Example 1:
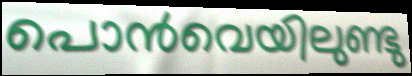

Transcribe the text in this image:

പൊൻവെയിലുണ്ടു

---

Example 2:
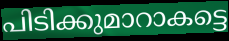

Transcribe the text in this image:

പിടിക്കുമാറാകട്ടെ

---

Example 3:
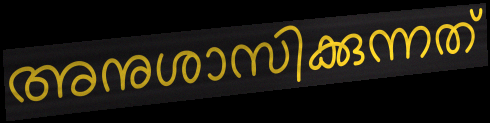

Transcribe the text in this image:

അനുശാസിക്കുന്നത്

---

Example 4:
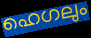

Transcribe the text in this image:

ഹെഗലും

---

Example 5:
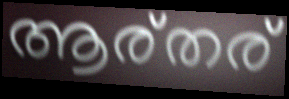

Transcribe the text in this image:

ആര്തര്